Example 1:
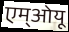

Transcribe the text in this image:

एम्ओयू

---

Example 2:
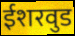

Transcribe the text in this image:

ईशरवुड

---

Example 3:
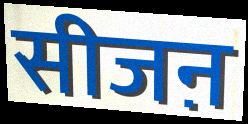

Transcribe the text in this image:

सीजऩ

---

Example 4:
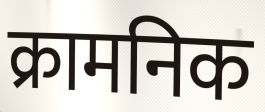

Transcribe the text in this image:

क्रामनिक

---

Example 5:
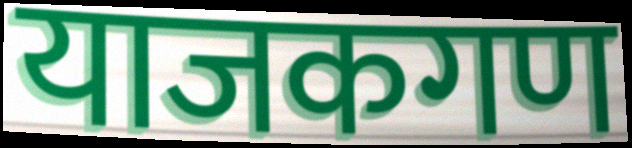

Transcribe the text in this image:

याजकगण